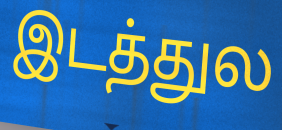
இடத்துல